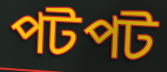
পটপট